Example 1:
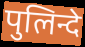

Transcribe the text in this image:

पुलिन्दे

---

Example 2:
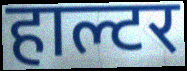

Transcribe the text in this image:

हाल्टर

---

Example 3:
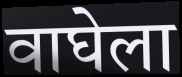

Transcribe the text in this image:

वाघेला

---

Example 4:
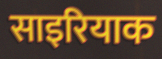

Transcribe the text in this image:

साइरियाक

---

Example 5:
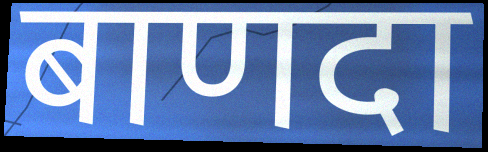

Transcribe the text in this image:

बाणदा